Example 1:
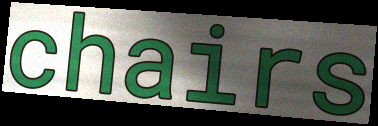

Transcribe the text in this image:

chairs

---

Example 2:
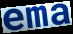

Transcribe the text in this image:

ema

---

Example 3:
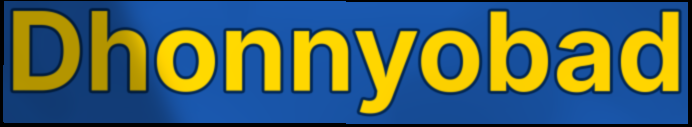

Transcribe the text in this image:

Dhonnyobad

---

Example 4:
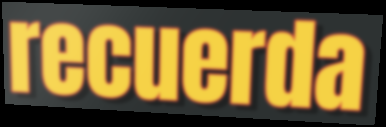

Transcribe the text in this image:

recuerda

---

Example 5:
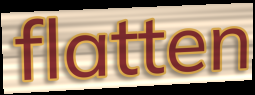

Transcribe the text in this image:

flatten